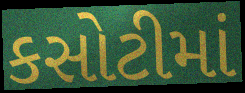
કસોટીમાં